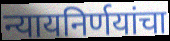
न्यायनिर्णयांचा